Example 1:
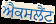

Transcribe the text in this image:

ਐਕਸਲੈਂਟ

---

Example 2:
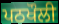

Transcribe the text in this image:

ਪਠਖੌਲੀ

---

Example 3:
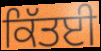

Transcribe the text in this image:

ਕਿੱਤਈ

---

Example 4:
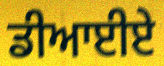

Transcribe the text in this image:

ਡੀਆਈਏ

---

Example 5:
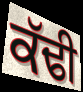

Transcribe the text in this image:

ਕੱਢੀ